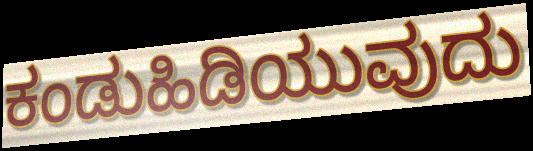
ಕಂಡುಹಿಡಿಯುವುದು